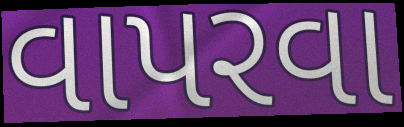
વાપરવા